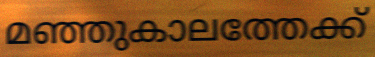
മഞ്ഞുകാലത്തേക്ക്